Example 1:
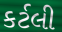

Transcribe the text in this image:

કર્ટલી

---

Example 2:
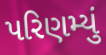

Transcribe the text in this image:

પરિણમ્યું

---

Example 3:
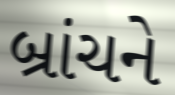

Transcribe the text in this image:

બ્રાંચને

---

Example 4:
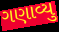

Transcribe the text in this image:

ગણાવ્યુ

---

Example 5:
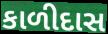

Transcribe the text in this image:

કાળીદાસ